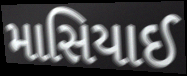
માસિયાઈ